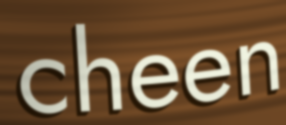
cheen